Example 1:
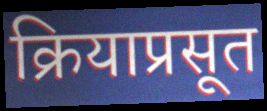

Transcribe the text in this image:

क्रियाप्रसूत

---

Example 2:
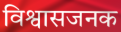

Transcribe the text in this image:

विश्वासजनक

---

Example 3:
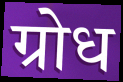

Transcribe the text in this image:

ग्रोध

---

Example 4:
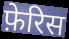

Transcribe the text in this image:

फ़ेरिस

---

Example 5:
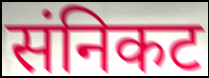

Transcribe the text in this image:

संनिकट